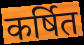
कर्षित